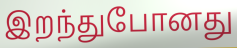
இறந்துபோனது